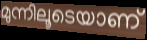
മുന്നിലൂടെയാണ്